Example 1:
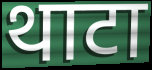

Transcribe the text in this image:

थाटा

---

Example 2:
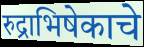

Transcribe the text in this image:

रुद्राभिषेकाचे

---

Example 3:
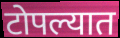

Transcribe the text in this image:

टोपल्यात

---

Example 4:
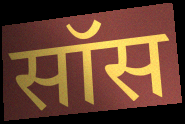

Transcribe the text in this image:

सॉस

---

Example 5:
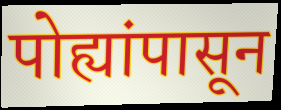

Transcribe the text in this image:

पोह्यांपासून